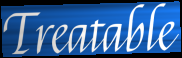
Treatable